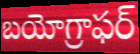
బయోగ్రాఫర్